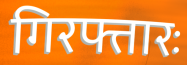
गिरफ्तारः